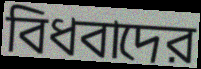
বিধবাদের